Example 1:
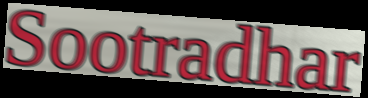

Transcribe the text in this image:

Sootradhar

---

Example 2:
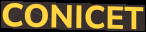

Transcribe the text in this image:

CONICET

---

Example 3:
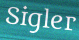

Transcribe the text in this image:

Sigler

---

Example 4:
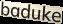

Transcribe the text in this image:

baduke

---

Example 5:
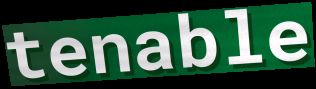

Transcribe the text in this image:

tenable